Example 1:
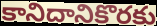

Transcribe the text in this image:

కానిదానికొరకు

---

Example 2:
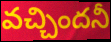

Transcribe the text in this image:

వచ్చిందనీ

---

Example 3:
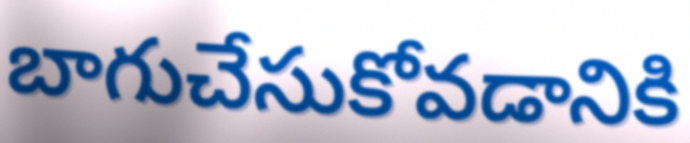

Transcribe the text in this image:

బాగుచేసుకోవడానికి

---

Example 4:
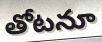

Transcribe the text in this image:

తోటనూ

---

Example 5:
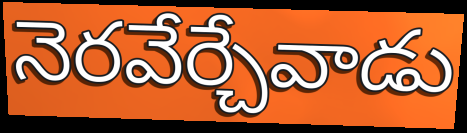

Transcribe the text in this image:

నెరవేర్చేవాడు